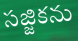
సజ్జికను